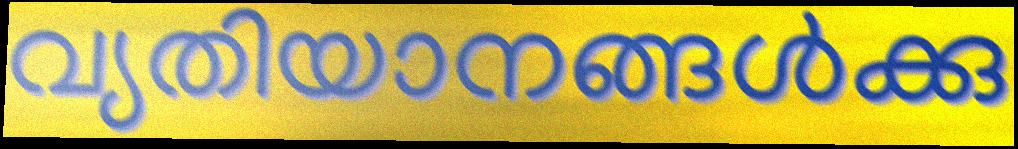
വ്യതിയാനങ്ങൾക്കു